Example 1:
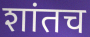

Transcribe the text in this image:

शांतच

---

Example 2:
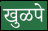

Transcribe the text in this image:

खुळपे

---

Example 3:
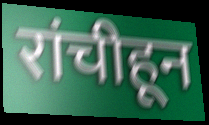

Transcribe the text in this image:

रांचीहून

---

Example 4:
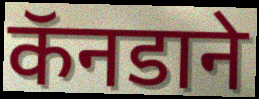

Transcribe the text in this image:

कॅनडाने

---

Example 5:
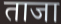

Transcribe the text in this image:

ताजा